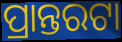
ପ୍ରାନ୍ତରଟା